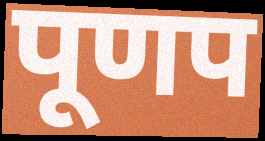
पूणप